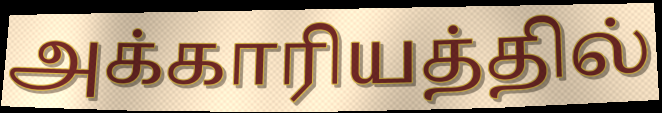
அக்காரியத்தில்